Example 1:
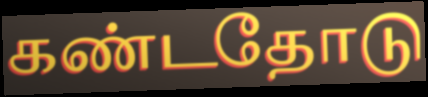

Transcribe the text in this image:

கண்டதோடு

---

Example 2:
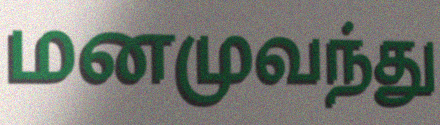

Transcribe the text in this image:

மனமுவந்து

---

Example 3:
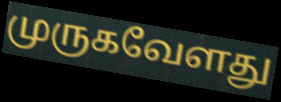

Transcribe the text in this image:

முருகவேளது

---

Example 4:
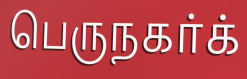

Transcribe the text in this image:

பெருநகர்க்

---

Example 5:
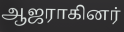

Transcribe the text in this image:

ஆஜராகினர்